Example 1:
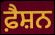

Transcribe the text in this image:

ਫ਼ੈਸ਼ਨ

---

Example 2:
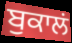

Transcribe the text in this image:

ਬੁਕਾਲਂ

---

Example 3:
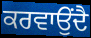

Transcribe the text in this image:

ਕਰਵਾਉਂਦੈ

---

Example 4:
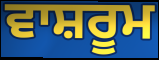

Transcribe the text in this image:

ਵਾਸ਼ਰੂਮ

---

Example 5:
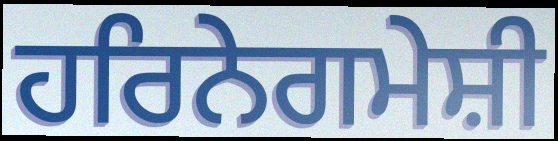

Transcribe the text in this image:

ਹਰਿਨੇਗਮੇਸ਼ੀ